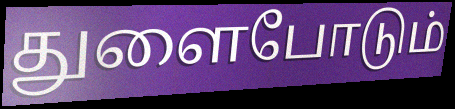
துளைபோடும்